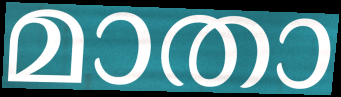
മാതാ